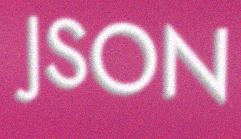
JSON